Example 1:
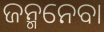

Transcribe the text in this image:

ଜନ୍ମନେବା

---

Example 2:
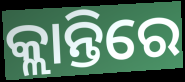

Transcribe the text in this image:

କ୍ଲାନ୍ତିରେ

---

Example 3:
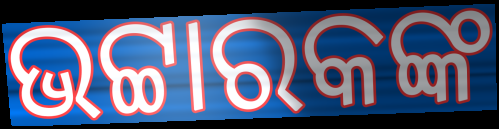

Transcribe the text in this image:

ଭଟ୍ଟାରକଙ୍କ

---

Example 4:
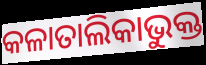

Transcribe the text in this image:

କଳାତାଲିକାଭୁକ୍ତ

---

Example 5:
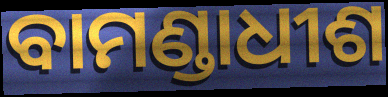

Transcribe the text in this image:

ବାମଣ୍ଡାଧୀଶ